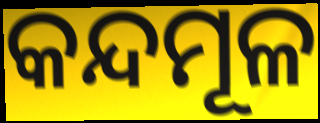
କନ୍ଦମୂଳ